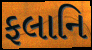
ફલાનિ